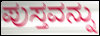
ಪುಸ್ತವನ್ನು